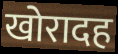
खोरादह